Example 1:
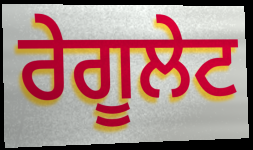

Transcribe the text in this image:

ਰੇਗੂਲੇਟ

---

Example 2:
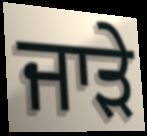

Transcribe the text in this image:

ਜਾੜੇ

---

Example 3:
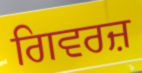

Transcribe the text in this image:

ਗਿਵਰਜ਼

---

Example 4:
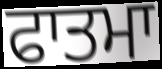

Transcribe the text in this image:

ਫਾਤਮਾ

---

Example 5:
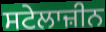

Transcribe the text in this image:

ਸਟੇਲਾਜ਼ੀਨ